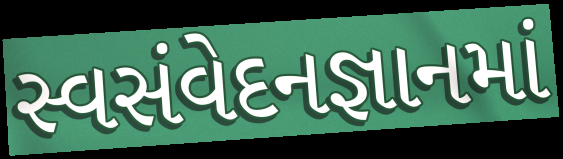
સ્વસંવેદનજ્ઞાનમાં